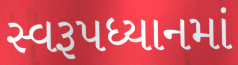
સ્વરૂપધ્યાનમાં